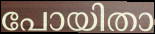
പോയിതാ